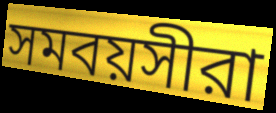
সমবয়সীরা